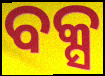
ବକ୍ସ